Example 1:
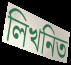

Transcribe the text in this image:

লিখনিত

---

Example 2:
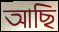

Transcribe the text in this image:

আছি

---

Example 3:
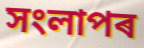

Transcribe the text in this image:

সংলাপৰ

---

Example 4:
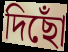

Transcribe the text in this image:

দিছোঁ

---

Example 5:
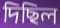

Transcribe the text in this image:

দিছিল